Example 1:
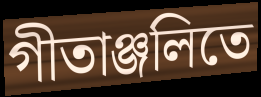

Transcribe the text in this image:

গীতাঞ্জলিতে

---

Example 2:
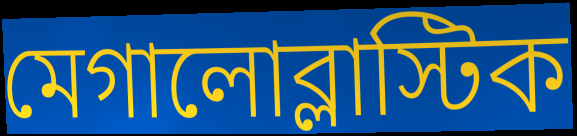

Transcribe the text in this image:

মেগালোব্লাস্টিক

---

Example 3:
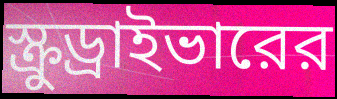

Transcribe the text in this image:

স্ক্রুড্রাইভারের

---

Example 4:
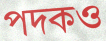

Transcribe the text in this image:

পদকও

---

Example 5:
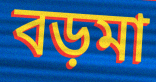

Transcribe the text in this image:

বড়মা